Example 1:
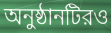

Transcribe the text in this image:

অনুষ্ঠানটিরও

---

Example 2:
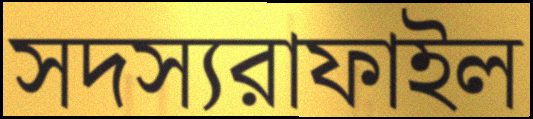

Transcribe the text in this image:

সদস্যরাফাইল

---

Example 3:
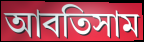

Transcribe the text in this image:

আবতিসাম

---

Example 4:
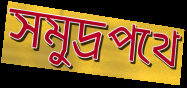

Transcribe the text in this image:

সমুদ্রপথে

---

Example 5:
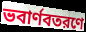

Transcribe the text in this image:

ভবার্ণবতরণে